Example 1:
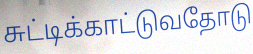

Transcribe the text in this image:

சுட்டிக்காட்டுவதோடு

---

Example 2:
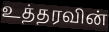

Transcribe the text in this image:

உத்தரவின்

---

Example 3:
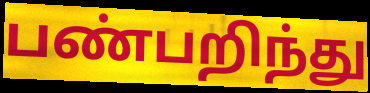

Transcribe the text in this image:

பண்பறிந்து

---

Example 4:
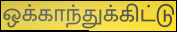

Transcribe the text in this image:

ஒக்காந்துக்கிட்டு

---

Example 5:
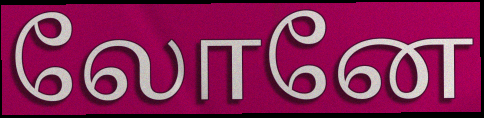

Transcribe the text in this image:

லோனே